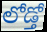
లోడ్తో